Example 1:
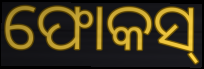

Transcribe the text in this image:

ଫୋକସ୍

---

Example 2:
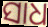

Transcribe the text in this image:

ସାଧ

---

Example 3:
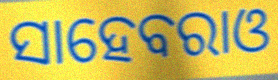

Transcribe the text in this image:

ସାହେବରାଓ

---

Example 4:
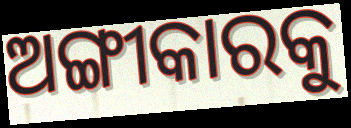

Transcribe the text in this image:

ଅଙ୍ଗୀକାରକୁ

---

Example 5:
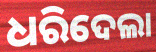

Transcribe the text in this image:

ଧରିଦେଲା